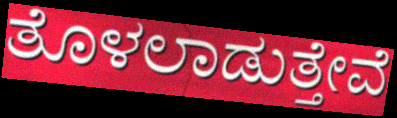
ತೊಳಲಾಡುತ್ತೇವೆ